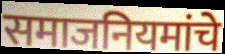
समाजनियमांचे